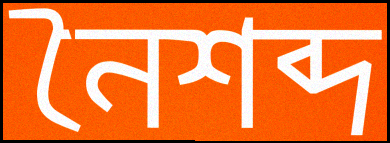
নৈশব্দ